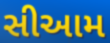
સીઆમ